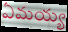
ఏమయ్య